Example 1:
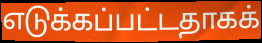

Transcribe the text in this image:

எடுக்கப்பட்டதாகக்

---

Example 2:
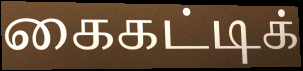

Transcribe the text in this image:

கைகட்டிக்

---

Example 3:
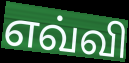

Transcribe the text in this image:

எவ்வி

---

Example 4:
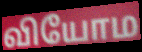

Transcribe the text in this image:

வியோம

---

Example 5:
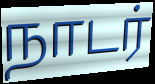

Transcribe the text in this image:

நாடர்